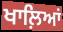
ਖਾਲ਼ਿਆਂ